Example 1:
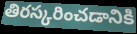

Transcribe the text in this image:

తిరస్కరించడానికి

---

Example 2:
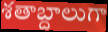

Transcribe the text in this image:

శతాబ్దాలుగా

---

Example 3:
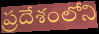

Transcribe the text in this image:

ప్రదేశంలోని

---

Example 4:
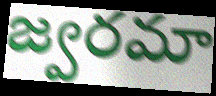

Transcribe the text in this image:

జ్వరమా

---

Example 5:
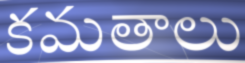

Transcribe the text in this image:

కమతాలు